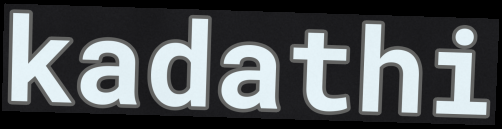
kadathi